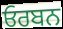
ਓਰਬਨ